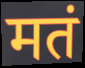
मतं